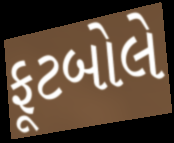
ફૂટબોલે